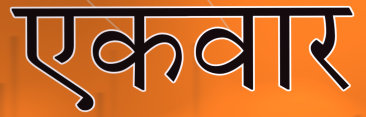
एकवार